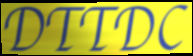
DTTDC